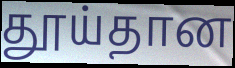
தூய்தான